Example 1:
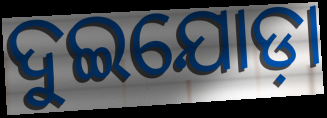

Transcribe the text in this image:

ଦୁଇଯୋଡ଼ା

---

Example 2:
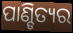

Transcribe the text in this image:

ପାଣ୍ଡିତ୍ୟର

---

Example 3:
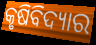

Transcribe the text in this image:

କୃଷିବିଦ୍ୟାର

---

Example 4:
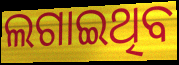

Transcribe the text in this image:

ଲଗାଇଥିବ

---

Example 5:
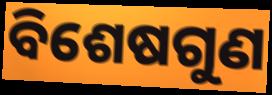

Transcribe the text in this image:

ବିଶେଷଗୁଣ